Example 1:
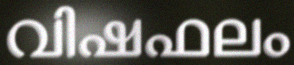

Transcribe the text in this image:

വിഷഫലം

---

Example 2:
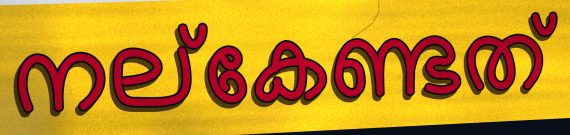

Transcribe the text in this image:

നല്കേണ്ടത്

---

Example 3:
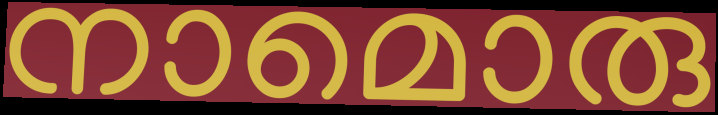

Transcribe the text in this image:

നാമൊരു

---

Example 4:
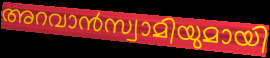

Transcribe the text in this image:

അറവാൻസ്വാമിയുമായി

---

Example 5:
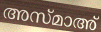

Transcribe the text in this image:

അസ്മാഅ്